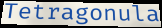
Tetragonula